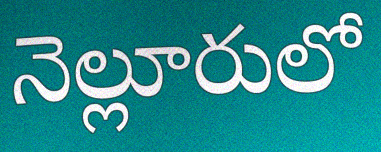
నెల్లూరులో